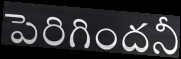
పెరిగిందనీ